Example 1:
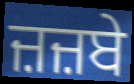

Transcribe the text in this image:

ਜ਼ਜ਼ਬੇ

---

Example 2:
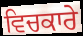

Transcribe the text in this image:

ਵਿਚਕਾਰੇ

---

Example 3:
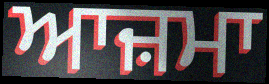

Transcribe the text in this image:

ਆਜ਼ਮਾ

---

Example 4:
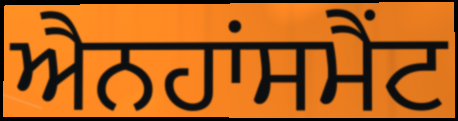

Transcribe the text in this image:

ਐਨਹਾਂਸਮੈਂਟ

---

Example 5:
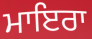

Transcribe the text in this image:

ਮਾਇਰਾ